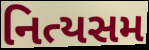
નિત્યસમ